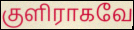
குளிராகவே